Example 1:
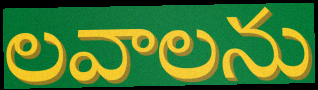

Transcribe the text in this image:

లవాలను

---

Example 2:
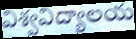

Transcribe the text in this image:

విశ్వవిద్యాలయ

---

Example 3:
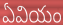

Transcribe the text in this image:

ఏవియం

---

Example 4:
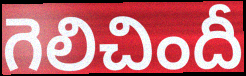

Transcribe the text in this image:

గెలిచిందీ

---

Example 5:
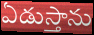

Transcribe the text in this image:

ఏడుస్తాను